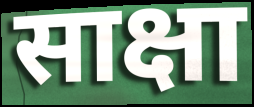
साक्षा